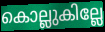
കൊല്ലുകില്ലേ